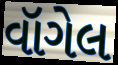
વૉગેલ